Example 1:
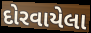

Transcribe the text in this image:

દોરવાયેલા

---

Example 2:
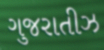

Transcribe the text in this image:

ગુજરાતીઝ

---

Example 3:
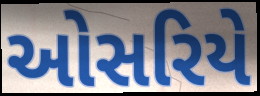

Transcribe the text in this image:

ઓસરિયે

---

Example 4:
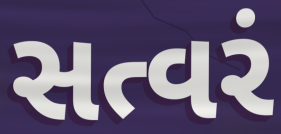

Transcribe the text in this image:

સત્વરં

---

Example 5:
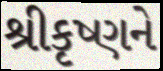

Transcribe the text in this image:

શ્રીકૃષ્ણને